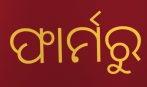
ଫାର୍ମରୁ